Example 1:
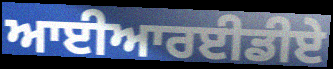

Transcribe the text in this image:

ਆਈਆਰਈਡੀਏ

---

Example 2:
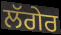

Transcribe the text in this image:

ਲੱਗੇਰ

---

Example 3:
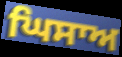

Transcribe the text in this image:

ਘਿਸਾਅ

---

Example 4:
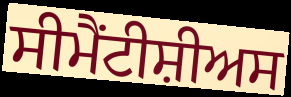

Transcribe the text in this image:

ਸੀਮੈਂਟੀਸ਼ੀਅਸ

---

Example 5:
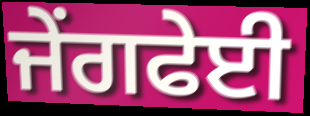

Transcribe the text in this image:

ਜੇਂਗਫੇਈ